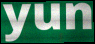
yun